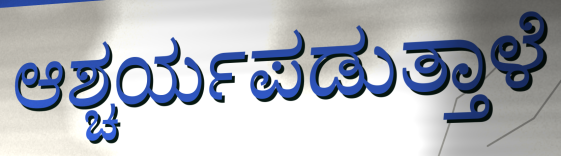
ಆಶ್ಚರ್ಯಪಡುತ್ತಾಳೆ